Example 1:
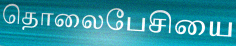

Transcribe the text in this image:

தொலைபேசியை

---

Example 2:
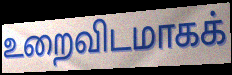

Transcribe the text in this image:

உறைவிடமாகக்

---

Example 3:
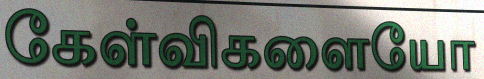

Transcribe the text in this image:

கேள்விகளையோ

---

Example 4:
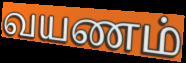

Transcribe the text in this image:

வயணம்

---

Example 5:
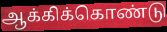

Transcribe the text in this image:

ஆக்கிக்கொண்டு